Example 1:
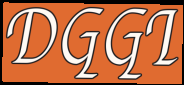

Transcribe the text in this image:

DGGI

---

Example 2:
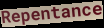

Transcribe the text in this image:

Repentance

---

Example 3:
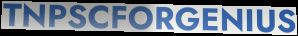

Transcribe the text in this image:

TNPSCFORGENIUS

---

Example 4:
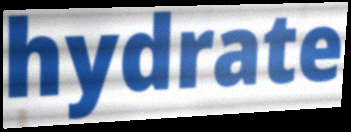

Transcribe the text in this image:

hydrate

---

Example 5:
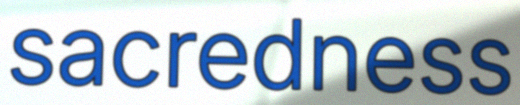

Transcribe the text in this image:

sacredness